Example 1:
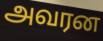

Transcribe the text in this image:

அவரன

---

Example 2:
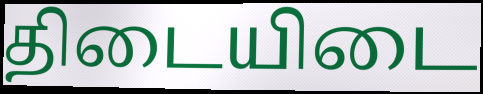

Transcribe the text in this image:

திடையிடை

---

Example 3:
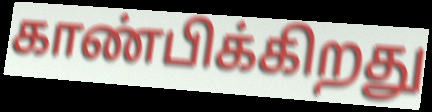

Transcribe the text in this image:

காண்பிக்கிறது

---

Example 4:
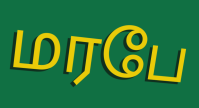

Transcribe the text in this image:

மரபே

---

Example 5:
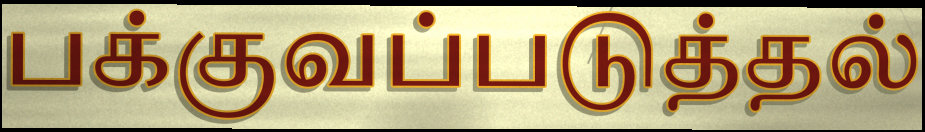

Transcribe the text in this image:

பக்குவப்படுத்தல்